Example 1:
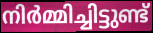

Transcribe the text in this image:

നിർമ്മിച്ചിട്ടുണ്ട്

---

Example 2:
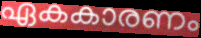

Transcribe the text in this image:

ഏകകാരണം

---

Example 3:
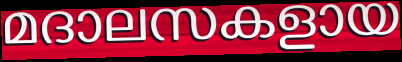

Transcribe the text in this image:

മദാലസകളായ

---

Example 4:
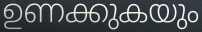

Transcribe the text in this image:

ഉണക്കുകയും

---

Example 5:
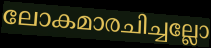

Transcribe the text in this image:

ലോകമാരചിച്ചല്ലോ